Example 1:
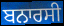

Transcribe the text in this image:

ਬਨਾਰਸੀ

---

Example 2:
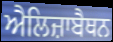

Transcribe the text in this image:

ਐਲਿਜ਼ਾਬੈਥਨ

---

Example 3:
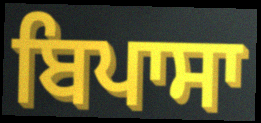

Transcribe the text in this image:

ਬਿਪਾਸਾ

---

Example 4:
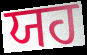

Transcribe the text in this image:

ਯਹ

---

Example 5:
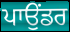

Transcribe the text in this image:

ਪਾਉਂਡਰ